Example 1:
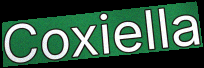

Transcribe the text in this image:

Coxiella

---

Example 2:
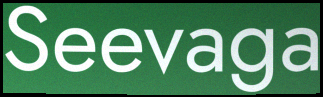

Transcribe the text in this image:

Seevaga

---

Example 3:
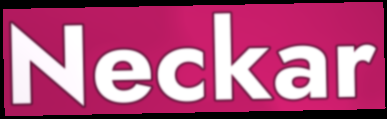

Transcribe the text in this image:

Neckar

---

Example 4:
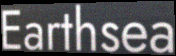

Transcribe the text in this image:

Earthsea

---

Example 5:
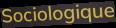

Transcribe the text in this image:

Sociologique